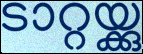
ടാറ്റയ്ക്കു